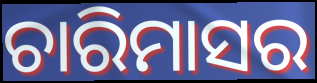
ଚାରିମାସର